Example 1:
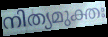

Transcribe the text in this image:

നിത്യമുക്തഃ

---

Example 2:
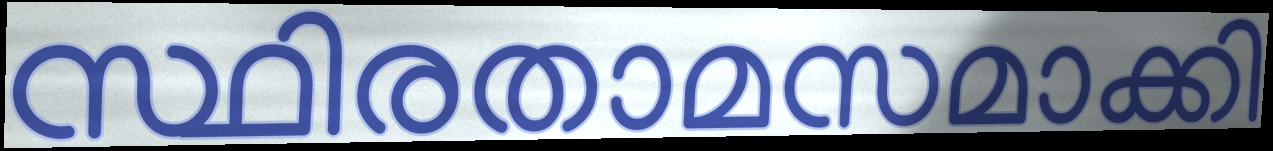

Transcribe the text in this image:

സ്ഥിരതാമസമാക്കി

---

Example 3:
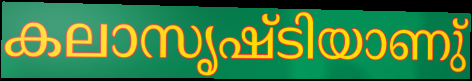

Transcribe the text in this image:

കലാസൃഷ്ടിയാണു്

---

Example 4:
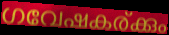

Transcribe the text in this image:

ഗവേഷകര്ക്കും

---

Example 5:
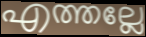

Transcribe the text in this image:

എത്തല്ലേ